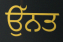
ਉੱਨਤ